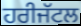
ਹਰੀਜੱਟਲ